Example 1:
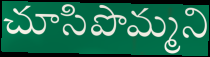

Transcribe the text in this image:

చూసిపొమ్మని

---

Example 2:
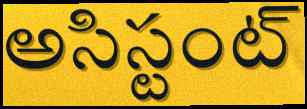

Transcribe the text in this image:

అసిస్టంట్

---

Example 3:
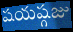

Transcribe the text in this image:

షయష్గజు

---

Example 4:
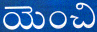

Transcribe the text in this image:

యెంచి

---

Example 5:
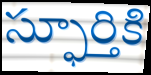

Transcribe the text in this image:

స్ఫూర్తికి